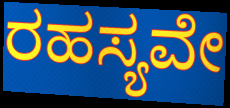
ರಹಸ್ಯವೇ